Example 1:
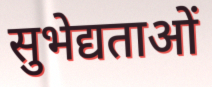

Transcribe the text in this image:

सुभेद्यताओं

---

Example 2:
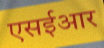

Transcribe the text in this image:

एसईआर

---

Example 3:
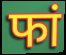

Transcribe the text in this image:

फां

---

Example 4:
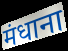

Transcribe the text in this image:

मंधाना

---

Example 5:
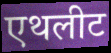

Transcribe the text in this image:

एथलीट